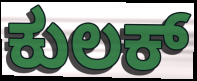
ಕುಲಕ್